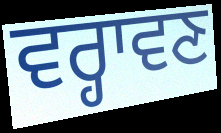
ਵਰ੍ਹਾਵਣ